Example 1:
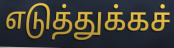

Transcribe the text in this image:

எடுத்துக்கச்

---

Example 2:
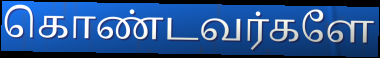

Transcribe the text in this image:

கொண்டவர்களே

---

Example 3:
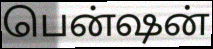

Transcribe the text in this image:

பென்ஷன்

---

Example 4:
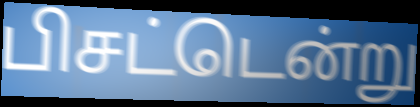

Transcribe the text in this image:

பிசட்டென்று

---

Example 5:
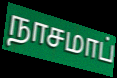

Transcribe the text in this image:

நாசமாப்